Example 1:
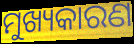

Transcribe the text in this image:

ମୁଖ୍ୟକାରଣ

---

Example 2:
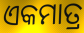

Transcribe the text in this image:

ଏକମାତ୍ର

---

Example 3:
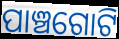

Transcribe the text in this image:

ପାଞ୍ଚଗୋଟି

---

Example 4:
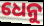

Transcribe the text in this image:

ଧେନୁ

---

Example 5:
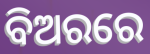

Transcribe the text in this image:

ବିଅରରେ